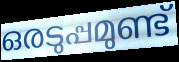
ഒരടുപ്പമുണ്ട്